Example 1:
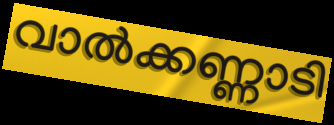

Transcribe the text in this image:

വാൽക്കണ്ണാടി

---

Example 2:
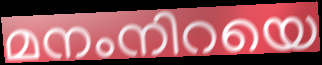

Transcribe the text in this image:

മനംനിറയെ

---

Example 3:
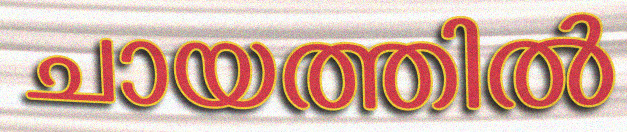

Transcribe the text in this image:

ചായത്തിൽ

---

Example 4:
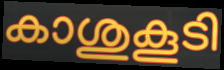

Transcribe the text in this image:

കാശുകൂടി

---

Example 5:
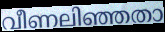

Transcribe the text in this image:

വീണലിഞ്ഞതാ